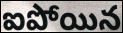
ఐపోయిన